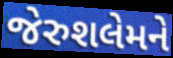
જેરુશલેમને